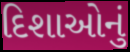
દિશાઓનું